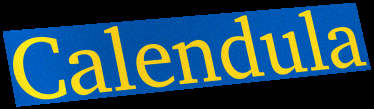
Calendula